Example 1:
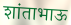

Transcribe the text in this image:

शांताभाऊ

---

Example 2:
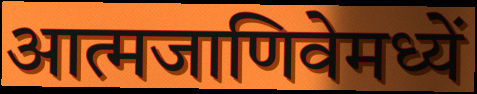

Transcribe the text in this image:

आत्मजाणिवेमध्यें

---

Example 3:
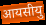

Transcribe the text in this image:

आयसीयु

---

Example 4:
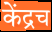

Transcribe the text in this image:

केंद्रच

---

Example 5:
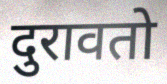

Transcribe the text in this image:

दुरावतो